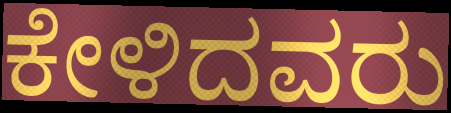
ಕೇಳಿದವರು